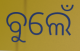
ବୁଲେଁ